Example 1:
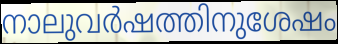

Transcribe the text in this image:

നാലുവർഷത്തിനുശേഷം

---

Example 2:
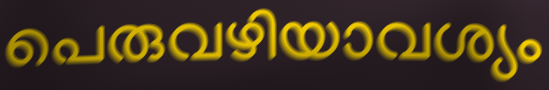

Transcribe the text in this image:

പെരുവഴിയാവശ്യം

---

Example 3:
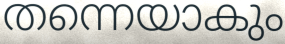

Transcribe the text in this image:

തന്നെയാകും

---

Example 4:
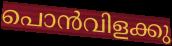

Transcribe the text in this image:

പൊൻവിളക്കു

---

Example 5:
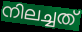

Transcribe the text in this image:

നിലച്ചത്